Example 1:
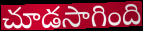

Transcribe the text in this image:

చూడసాగింది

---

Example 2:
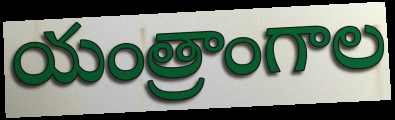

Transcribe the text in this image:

యంత్రాంగాల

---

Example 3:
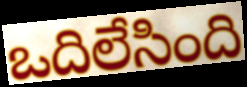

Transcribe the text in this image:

ఒదిలేసింది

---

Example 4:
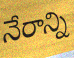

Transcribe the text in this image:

నేరాన్ని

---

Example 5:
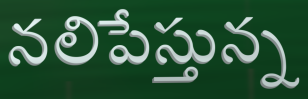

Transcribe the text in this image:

నలిపేస్తున్న